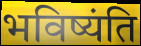
भविष्यंति